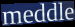
meddle